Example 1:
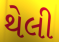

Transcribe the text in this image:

થેલી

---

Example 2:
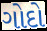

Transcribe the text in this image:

ગોદો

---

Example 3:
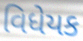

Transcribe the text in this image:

વિધેયક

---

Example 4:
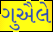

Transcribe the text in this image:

ગુઐલે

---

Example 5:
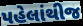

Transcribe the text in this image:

પહેલાંથીજ